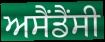
ਅਸੈਂਡੈਂਸੀ